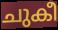
ചുകീ